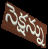
సెక్షన్ను